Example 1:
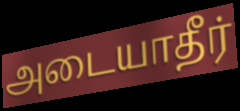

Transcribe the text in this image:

அடையாதீர்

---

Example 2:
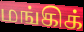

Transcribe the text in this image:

மங்கிக்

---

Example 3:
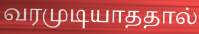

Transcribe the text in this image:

வரமுடியாததால்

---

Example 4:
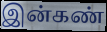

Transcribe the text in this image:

இன்கண்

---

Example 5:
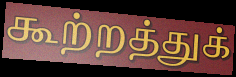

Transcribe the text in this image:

கூற்றத்துக்